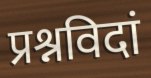
प्रश्नविदां